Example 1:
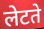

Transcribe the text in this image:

लेटते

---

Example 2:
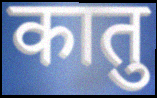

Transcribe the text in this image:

कातु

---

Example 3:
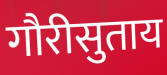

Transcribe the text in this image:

गौरीसुताय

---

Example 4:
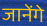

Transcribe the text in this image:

जानेंगे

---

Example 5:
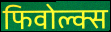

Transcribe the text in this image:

फिवोल्क्स